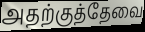
அதற்குத்தேவை